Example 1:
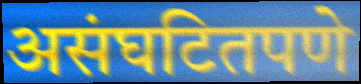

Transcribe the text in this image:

असंघटितपणे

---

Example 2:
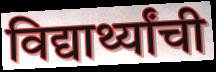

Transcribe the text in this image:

विद्यार्थ्यांची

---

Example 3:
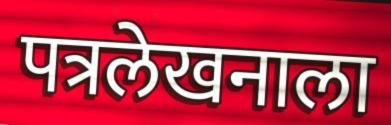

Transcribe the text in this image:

पत्रलेखनाला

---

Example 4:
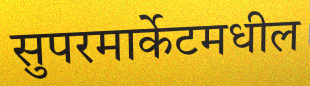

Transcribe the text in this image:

सुपरमार्केटमधील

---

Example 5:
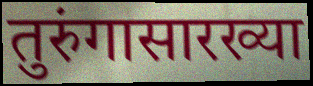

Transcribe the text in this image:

तुरुंगासारख्या